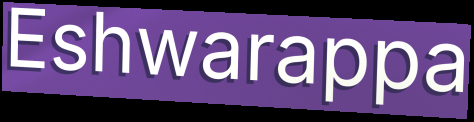
Eshwarappa